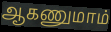
ஆகணுமாம்